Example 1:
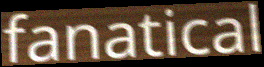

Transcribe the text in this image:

fanatical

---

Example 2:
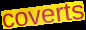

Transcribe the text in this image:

coverts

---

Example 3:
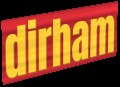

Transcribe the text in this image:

dirham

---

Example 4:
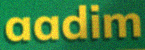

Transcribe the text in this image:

aadim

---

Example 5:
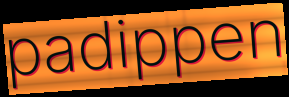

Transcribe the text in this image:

padippen